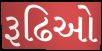
રૂઢિઓ